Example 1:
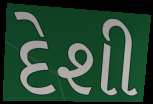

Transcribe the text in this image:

દેશી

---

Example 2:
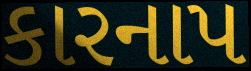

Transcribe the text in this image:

કારનાપ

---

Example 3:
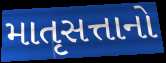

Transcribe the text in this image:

માતૃસત્તાનો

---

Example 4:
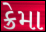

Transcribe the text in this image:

ક્રેમા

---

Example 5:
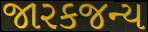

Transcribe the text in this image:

જારકજન્ય